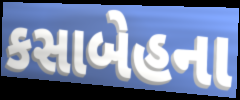
કસાબેહના